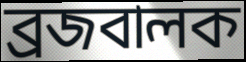
ব্রজবালক